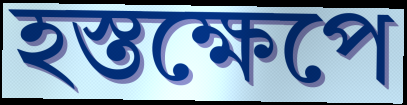
হস্তক্ষেপে